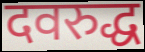
दवरुद्ध